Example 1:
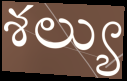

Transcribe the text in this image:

శల్యు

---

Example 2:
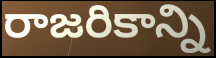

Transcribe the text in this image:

రాజరికాన్ని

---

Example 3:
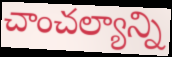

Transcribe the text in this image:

చాంచల్యాన్ని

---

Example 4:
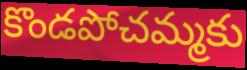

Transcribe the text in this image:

కొండపోచమ్మకు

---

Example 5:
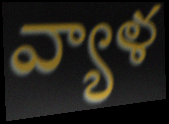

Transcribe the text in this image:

వ్యాళ